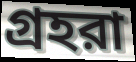
গ্রহরা